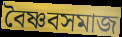
বৈষ্ণবসমাজ